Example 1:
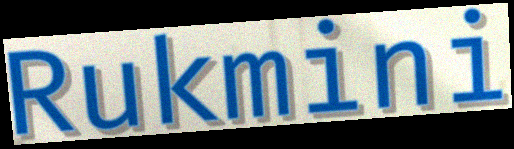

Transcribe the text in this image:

Rukmini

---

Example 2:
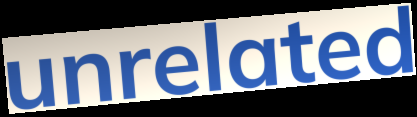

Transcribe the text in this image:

unrelated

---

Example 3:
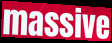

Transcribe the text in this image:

massive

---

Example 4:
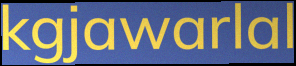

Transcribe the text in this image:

kgjawarlal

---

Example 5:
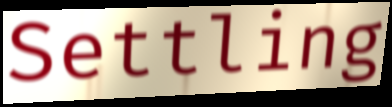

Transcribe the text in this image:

Settling